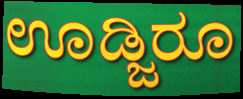
ಊಡ್ಜಿರೂ